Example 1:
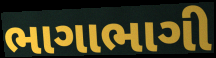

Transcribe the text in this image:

ભાગાભાગી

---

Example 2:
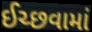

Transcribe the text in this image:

ઈચ્છવામાં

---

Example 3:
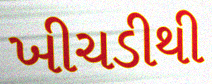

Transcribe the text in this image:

ખીચડીથી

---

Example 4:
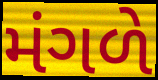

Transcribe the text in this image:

મંગળે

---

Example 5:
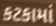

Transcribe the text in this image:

કટકામાં